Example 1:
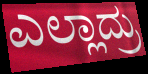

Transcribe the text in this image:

ಎಲ್ಲಾದ್ರು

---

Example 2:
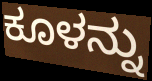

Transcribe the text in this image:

ಕೂಳನ್ನು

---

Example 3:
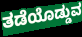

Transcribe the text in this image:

ತಡೆಯೊಡ್ಡುವ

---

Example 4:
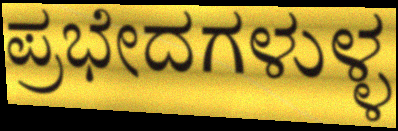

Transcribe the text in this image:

ಪ್ರಭೇದಗಳುಳ್ಳ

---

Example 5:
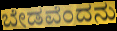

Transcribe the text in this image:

ಬೇಡವೆಂದನು